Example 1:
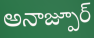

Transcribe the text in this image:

అనాజ్పూర్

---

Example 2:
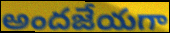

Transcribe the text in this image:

అందజేయగా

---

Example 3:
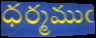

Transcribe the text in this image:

ధర్మముఁ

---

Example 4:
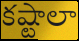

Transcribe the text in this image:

కష్టాలా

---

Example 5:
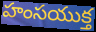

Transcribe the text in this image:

హంసయుక్త